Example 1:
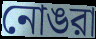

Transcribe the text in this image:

নোঙরা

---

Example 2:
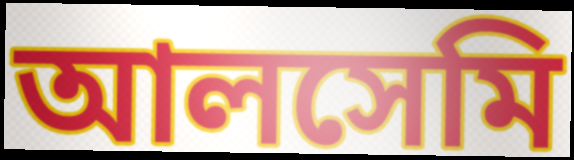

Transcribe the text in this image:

আলসেমি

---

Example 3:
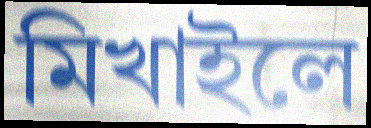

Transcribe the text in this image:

মিখাইলে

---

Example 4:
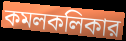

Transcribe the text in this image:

কমলকলিকার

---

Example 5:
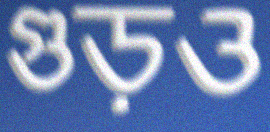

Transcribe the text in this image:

গুড়ও